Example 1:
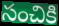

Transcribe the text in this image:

సంచికి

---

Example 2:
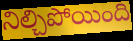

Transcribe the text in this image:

నిల్చిపోయింది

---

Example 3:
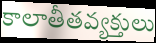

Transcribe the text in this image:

కాలాతీతవ్యక్తులు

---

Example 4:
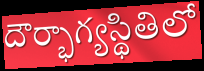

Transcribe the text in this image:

దౌర్భాగ్యస్థితిలో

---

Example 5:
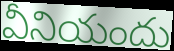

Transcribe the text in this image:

వీనియందు